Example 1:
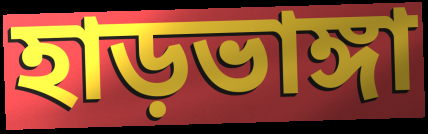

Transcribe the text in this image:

হাড়ভাঙ্গা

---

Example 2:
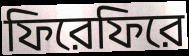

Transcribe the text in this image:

ফিরেফিরে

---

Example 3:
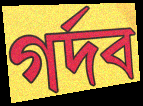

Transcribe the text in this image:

গর্দব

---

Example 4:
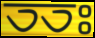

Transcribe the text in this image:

ততঃ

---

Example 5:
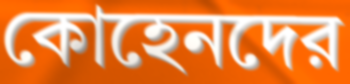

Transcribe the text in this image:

কোহেনদের